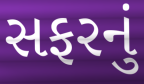
સફરનું